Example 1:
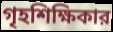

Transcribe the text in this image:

গৃহশিক্ষিকার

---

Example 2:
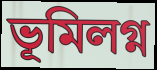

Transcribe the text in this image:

ভূমিলগ্ন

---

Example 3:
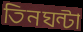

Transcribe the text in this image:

তিনঘন্টা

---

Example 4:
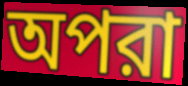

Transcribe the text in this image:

অপরা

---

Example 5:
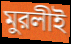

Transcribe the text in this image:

মুরলীই